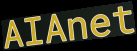
AIAnet